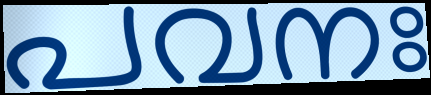
പവനഃ